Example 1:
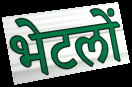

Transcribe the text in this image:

भेटलों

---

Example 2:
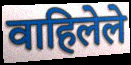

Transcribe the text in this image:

वाहिलेले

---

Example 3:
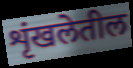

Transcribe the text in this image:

शृंखलेतील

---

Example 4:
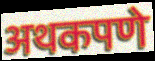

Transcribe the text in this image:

अथकपणे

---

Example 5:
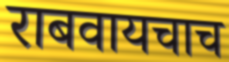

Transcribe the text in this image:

राबवायचाच